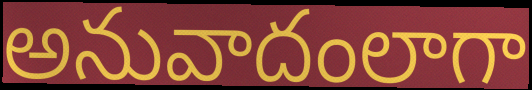
అనువాదంలాగా